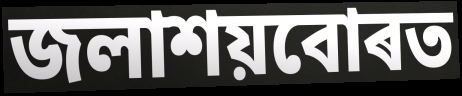
জলাশয়বোৰত